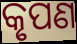
କୃପଣ